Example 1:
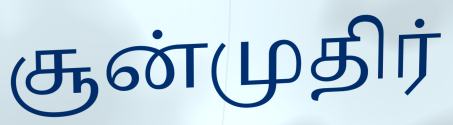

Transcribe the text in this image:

சூன்முதிர்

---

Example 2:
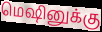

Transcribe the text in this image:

மெஷினுக்கு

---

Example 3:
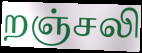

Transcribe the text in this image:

றஞ்சலி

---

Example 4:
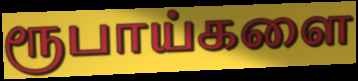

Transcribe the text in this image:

ரூபாய்களை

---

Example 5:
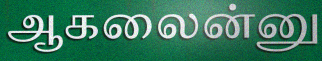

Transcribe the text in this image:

ஆகலைன்னு